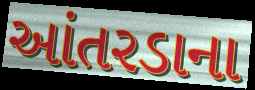
આંતરડાના